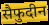
सैफुदीन